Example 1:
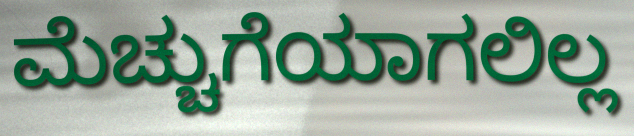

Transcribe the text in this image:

ಮೆಚ್ಚುಗೆಯಾಗಲಿಲ್ಲ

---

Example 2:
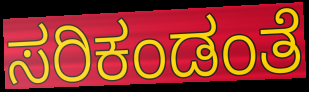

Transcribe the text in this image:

ಸರಿಕಂಡಂತೆ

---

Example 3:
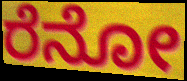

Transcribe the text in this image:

ರೆನೋ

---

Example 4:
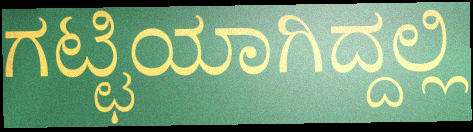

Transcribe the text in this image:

ಗಟ್ಟಿಯಾಗಿದ್ದಲ್ಲಿ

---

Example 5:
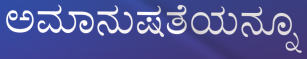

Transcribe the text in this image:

ಅಮಾನುಷತೆಯನ್ನೂ